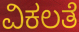
ವಿಕಲತೆ